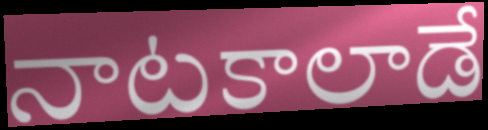
నాటకాలాడే